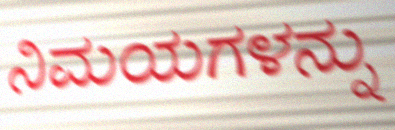
ನಿಮಯಗಳನ್ನು